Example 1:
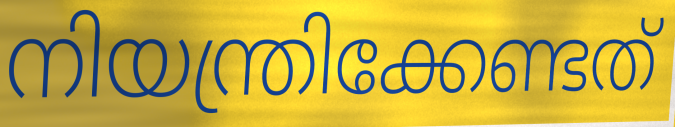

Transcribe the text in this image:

നിയന്ത്രിക്കേണ്ടത്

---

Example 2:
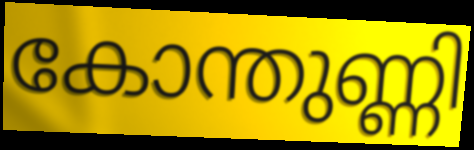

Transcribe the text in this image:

കോന്തുണ്ണി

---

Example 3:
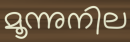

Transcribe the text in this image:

മൂന്നുനില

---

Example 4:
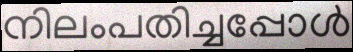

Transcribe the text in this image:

നിലംപതിച്ചപ്പോൾ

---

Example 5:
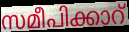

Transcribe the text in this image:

സമീപിക്കാറ്